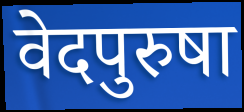
वेदपुरुषा